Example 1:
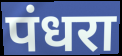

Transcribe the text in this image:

पंधरा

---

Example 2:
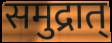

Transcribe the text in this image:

समुद्रात्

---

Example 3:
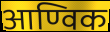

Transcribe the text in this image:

आण्विक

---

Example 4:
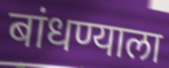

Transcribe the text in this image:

बांधण्याला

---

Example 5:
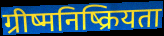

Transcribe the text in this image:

ग्रीष्मनिष्क्रियता